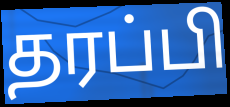
தரப்பி